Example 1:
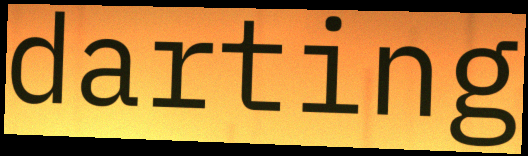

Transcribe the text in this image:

darting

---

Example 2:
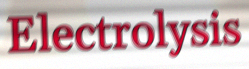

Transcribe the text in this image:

Electrolysis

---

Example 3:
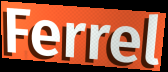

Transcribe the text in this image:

Ferrel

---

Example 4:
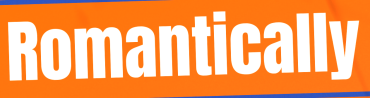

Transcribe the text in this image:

Romantically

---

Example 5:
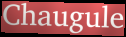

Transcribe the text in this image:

Chaugule